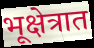
भूक्षेत्रात